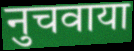
नुचवाया